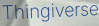
Thingiverse